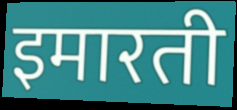
इमारती